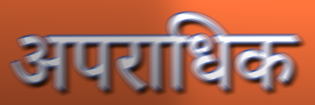
अपराधिक